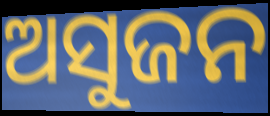
ଅସୁଜନ